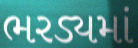
ભરડ્યમાં